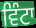
ਵਿੰਟਾ